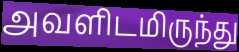
அவளிடமிருந்து